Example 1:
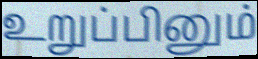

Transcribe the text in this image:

உறுப்பினும்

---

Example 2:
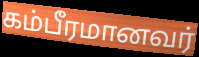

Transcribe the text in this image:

கம்பீரமானவர்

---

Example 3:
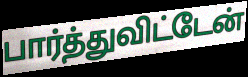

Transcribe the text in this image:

பார்த்துவிட்டேன்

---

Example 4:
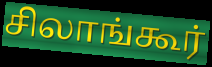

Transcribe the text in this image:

சிலாங்கூர்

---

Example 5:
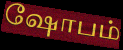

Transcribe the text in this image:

ஷோபம்